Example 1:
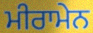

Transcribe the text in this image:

ਮੀਰਾਮੇਨ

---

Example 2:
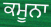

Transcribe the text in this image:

ਕਮੂਨਾ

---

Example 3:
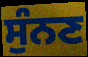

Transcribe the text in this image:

ਸੁੰਨਣ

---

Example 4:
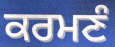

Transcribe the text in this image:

ਕਰਮਣੰ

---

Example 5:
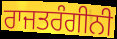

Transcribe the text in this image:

ਰਾਜਤਰੰਗੀਨੀ